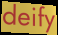
deify